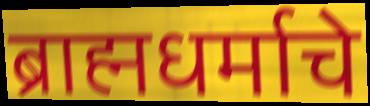
ब्राह्मधर्माचे